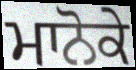
ਮਾਨੋਕੇ